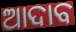
ଆଦାବ